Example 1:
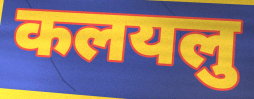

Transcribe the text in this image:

कलयलु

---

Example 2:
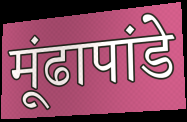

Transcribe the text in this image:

मूंढापांडे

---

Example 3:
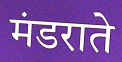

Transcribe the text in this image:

मंडराते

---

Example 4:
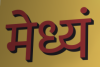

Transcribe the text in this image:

मेध्यं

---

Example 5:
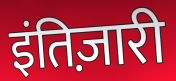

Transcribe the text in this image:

इंतिज़ारी